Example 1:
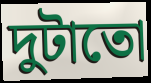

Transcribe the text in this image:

দুটাতো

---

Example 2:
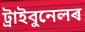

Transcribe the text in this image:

ট্ৰাইবুনেলৰ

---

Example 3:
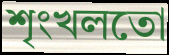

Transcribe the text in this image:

শৃংখলতো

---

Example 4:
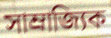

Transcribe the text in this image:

সাম্ৰাজ্যিক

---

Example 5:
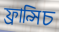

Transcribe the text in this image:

ফ্ৰান্সিচ